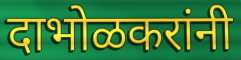
दाभोळकरांनी